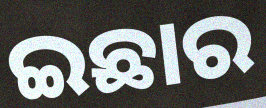
ଇଛାର